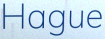
Hague